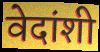
वेदांशी